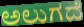
ಅಲುಗದೆ